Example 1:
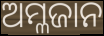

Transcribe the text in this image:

ଅମ୍ଳଜାନ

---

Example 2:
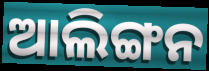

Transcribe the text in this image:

ଆଲିଙ୍ଗନ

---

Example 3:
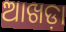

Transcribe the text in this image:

ଆଖଡ଼ା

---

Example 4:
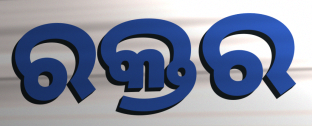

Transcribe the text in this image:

ରକ୍ତର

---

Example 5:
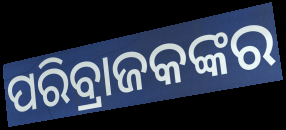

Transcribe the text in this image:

ପରିବ୍ରାଜକଙ୍କର